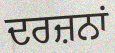
ਦਰਜ਼ਨਾਂ